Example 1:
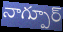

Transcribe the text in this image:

నాగ్పూర్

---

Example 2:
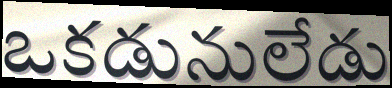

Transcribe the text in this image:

ఒకడునులేడు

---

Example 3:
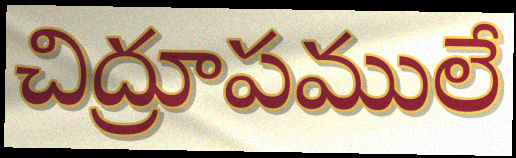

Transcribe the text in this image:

చిద్రూపములే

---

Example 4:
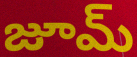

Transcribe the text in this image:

జూమ్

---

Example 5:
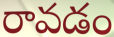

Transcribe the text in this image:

రావడం